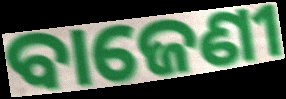
ବାଜେଣୀ